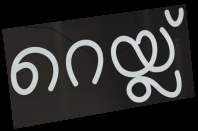
റെയ്ല്